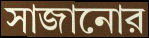
সাজানোর